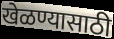
खेळण्यासाठी